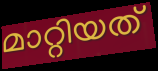
മാറ്റിയത്